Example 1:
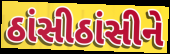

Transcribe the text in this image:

ઠાંસીઠાંસીને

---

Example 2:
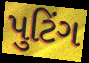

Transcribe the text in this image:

પુટિંગ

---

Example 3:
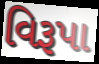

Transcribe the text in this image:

વિરૂપા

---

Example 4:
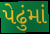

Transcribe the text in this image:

પેઢુંમાં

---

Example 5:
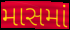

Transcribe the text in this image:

માસમાં